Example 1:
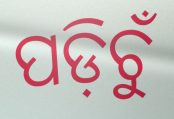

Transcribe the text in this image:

ପଡ଼ିଚୁଁ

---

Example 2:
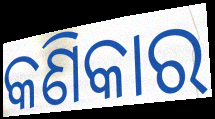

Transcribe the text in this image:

କଣିକାର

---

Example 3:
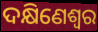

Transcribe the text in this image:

ଦକ୍ଷିଣେଶ୍ୱର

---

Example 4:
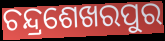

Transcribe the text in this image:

ଚନ୍ଦ୍ରଶେଖରପୁର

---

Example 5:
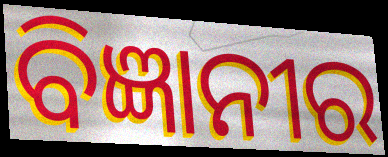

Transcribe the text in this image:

ବିଜ୍ଞାନୀର